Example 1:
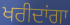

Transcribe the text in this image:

ਖਰੀਦਾਂਗਾ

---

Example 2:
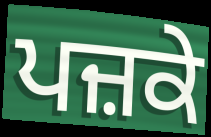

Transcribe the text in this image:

ਪਜ਼ਕੇ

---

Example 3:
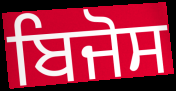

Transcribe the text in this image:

ਬਿਜੋਸ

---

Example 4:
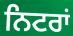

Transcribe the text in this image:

ਨਿਟਰਾਂ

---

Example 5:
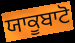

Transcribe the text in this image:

ਯਾਕੂਬਾਟੋ